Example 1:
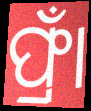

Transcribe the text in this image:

ଫ୍ରାଁ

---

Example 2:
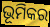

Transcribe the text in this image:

ଭୂମିକର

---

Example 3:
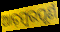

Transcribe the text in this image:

ଆଡ଼ମ୍ବରପୂର୍ଣ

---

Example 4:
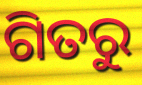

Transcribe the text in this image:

ଗିତରୁ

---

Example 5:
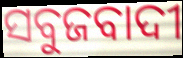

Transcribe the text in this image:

ସବୁଜବାଦୀ